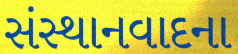
સંસ્થાનવાદના